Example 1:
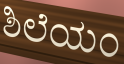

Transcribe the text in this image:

ಶಿಲೆಯಂ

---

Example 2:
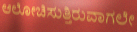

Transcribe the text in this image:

ಆಲೋಚಿಸುತ್ತಿರುವಾಗಲೇ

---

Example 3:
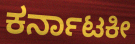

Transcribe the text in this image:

ಕರ್ನಾಟಕೀ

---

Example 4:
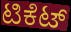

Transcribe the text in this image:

ಟಿಕೆಟ್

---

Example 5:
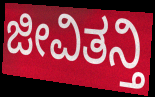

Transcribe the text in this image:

ಜೀವಿತನ್ತಿ